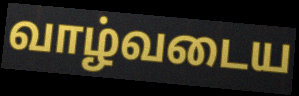
வாழ்வடைய